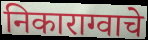
निकाराग्वाचे